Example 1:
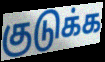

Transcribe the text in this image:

குடுக்க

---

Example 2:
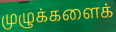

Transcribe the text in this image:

முழுக்களைக்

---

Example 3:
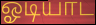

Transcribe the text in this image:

ஓடியாட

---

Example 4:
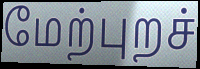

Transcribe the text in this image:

மேற்புறச்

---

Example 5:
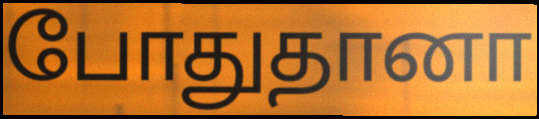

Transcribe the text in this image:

போதுதானா